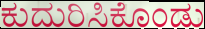
ಕುದುರಿಸಿಕೊಂಡು